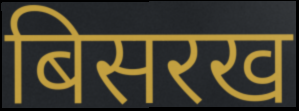
बिसरख